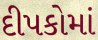
દીપકોમાં